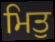
ਮਿਤੁ